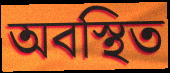
অবস্থিত